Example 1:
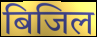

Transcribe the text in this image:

बिजिल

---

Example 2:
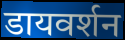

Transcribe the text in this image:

डायवर्शन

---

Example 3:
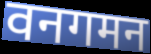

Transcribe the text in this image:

वनगमन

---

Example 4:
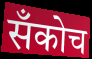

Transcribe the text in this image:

सँकोच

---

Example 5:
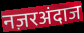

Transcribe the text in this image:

नज़रअंदाज